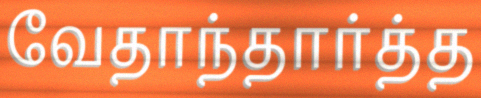
வேதாந்தார்த்த